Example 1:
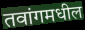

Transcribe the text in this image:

तवांगमधील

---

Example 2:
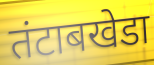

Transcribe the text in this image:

तंटाबखेडा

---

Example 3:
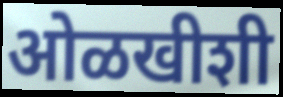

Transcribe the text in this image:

ओळखीशी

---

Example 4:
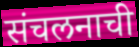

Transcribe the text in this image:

संचलनाची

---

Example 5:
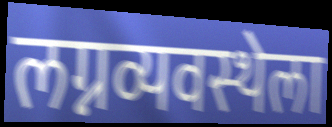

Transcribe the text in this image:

लग्नव्यवस्थेला